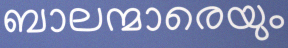
ബാലന്മാരെയും